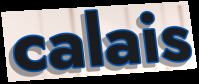
calais